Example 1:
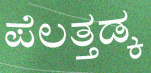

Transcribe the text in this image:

ಪೆಲತ್ತಡ್ಕ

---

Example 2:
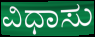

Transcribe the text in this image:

ವಿಧಾಸು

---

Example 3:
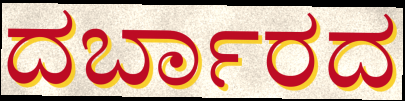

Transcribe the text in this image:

ದರ್ಬಾರದ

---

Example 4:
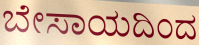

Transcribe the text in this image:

ಬೇಸಾಯದಿಂದ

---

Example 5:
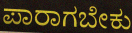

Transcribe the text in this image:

ಪಾರಾಗಬೇಕು